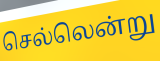
செல்லென்று